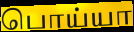
பொய்யா